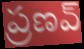
ప్రణవ్